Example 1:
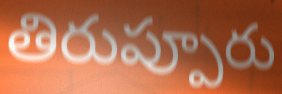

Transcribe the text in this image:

తిరుప్పూరు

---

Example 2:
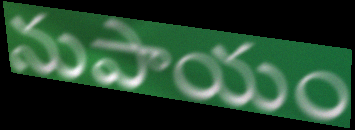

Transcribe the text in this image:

నుపాయం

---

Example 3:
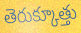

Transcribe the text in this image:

తెరుక్కూత్తు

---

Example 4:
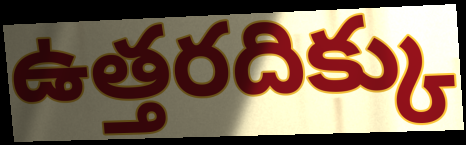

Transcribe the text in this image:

ఉత్తరదిక్కు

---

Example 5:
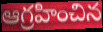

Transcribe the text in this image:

ఆగ్రహించిన